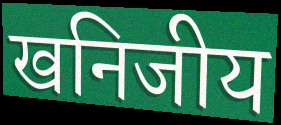
खनिजीय